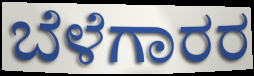
ಬೆಳೆಗಾರರ